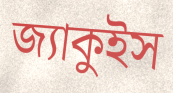
জ্যাকুইস